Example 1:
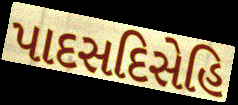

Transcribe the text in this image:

પાદસદિસેહિ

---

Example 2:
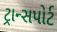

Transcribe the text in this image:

ટ્રાન્સપોર્ટ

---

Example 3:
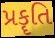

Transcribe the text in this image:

પ્રકૄતિ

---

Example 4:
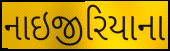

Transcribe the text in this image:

નાઇજીરિયાના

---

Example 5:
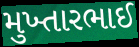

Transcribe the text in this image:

મુખ્તારભાઈ